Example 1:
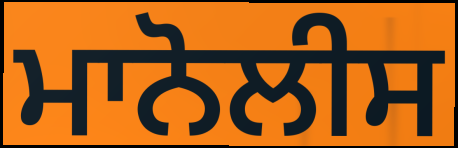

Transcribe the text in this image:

ਮਾਨੋਲੀਸ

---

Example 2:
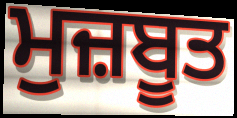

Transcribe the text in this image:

ਮੁਜ਼ਬੂਤ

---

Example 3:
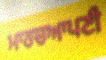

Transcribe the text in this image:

ਮਾਰਚਆਪਣੀ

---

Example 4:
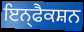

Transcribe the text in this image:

ਇਨ੍ਫੈਕਸ਼ਨ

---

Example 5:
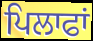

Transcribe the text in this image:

ਪਿਲਾਫਾਂ